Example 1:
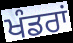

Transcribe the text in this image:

ਖੰਡਰਾਂ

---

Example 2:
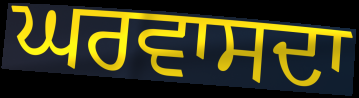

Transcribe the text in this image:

ਘਰਵਾਸਦਾ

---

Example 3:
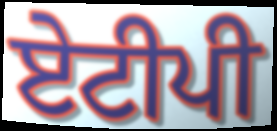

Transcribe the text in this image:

ਏਟੀਪੀ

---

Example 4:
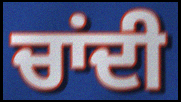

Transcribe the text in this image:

ਚਾਂਦੀ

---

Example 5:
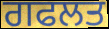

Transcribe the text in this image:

ਗਫਲਤ